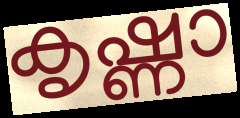
കൃഷ്ണാ